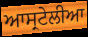
ਆਸ੍ਰਟੇਲੀਆ